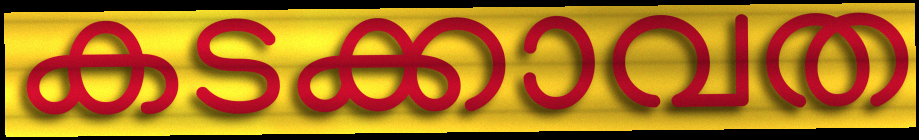
കടക്കാവത